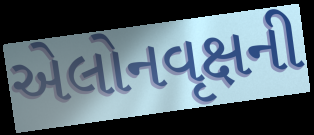
એલોનવૃક્ષની